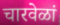
चारवेळां